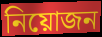
নিয়োজন